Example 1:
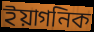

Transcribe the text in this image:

ইয়াগনিক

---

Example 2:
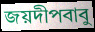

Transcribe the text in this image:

জয়দীপবাবু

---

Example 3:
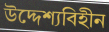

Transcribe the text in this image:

উদ্দেশ্যবিহীন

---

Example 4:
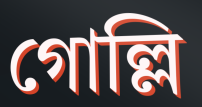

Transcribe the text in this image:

গোল্লি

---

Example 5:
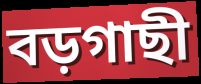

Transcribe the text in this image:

বড়গাছী